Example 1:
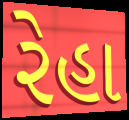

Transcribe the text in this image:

રેહા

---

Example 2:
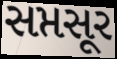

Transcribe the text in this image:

સપ્તસૂર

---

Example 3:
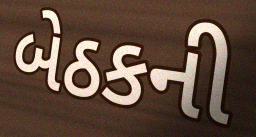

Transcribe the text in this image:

બેઠકની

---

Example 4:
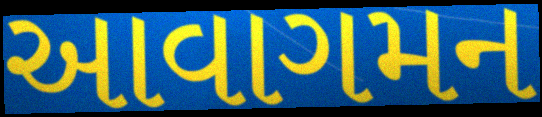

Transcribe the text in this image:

આવાગમન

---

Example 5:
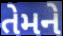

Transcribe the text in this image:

તેમને